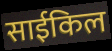
साईकिल